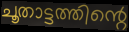
ചൂതാട്ടത്തിന്റെ